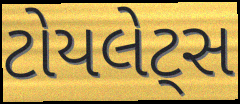
ટોયલેટ્સ